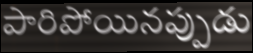
పారిపోయినప్పుడు